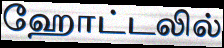
ஹோட்டலில்